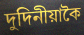
দুদিনীয়াকৈ